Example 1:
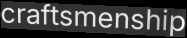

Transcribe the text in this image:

craftsmenship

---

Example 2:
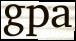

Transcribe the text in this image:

gpa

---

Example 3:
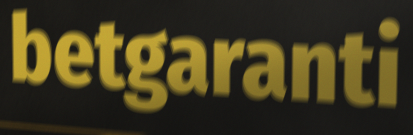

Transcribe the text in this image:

betgaranti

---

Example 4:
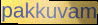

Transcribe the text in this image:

pakkuvam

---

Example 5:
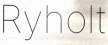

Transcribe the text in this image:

Ryholt